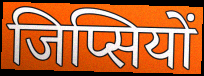
जिप्सियों